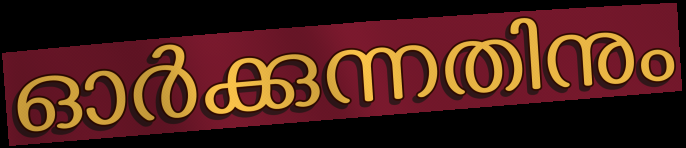
ഓർക്കുന്നതിനും